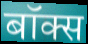
बॉक्स